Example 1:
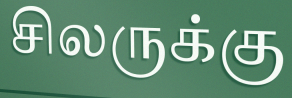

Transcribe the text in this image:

சிலருக்கு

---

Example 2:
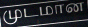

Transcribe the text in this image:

முடமான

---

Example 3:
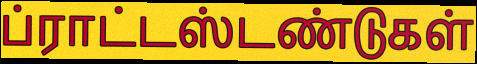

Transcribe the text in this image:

ப்ராட்டஸ்டண்டுகள்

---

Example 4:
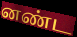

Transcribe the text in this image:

னண்ட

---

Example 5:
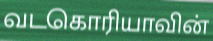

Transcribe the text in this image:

வடகொரியாவின்